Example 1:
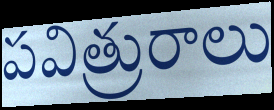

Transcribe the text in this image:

పవిత్రురాలు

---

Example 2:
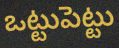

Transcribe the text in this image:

ఒట్టుపెట్టు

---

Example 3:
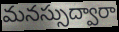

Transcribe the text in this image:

మనస్సుద్వారా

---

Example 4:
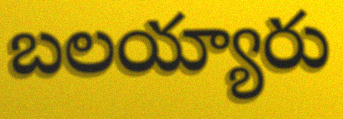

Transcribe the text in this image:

బలయ్యారు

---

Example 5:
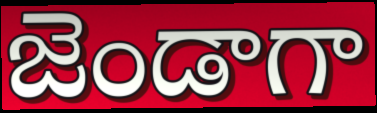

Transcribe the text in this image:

జెండాగా